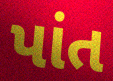
પાંત